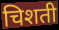
चिशती